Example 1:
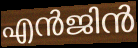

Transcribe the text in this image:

എൻജിൻ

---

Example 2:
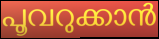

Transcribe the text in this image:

പൂവറുക്കാൻ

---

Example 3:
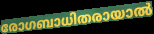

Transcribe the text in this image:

രോഗബാധിതരായാൽ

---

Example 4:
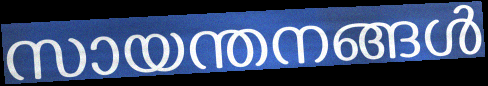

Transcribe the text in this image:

സായന്തനങ്ങൾ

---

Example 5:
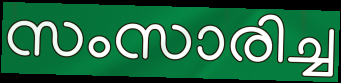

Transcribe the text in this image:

സംസാരിച്ച